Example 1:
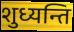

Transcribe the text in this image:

शुध्यन्ति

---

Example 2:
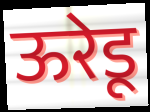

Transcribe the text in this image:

ऊरेडू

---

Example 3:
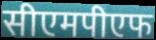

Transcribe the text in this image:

सीएमपीएफ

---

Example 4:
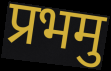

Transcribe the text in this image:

प्रभमु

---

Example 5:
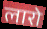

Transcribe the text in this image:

लारो